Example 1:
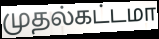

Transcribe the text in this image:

முதல்கட்டமா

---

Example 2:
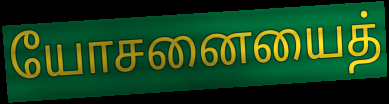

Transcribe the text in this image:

யோசனையைத்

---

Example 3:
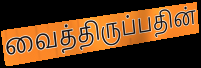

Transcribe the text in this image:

வைத்திருப்பதின்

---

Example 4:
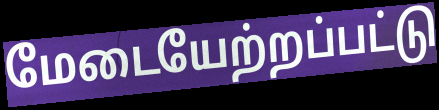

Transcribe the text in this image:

மேடையேற்றப்பட்டு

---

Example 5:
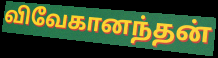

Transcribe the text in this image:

விவேகானந்தன்